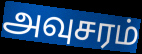
அவுசரம்